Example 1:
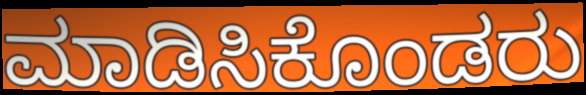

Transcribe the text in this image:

ಮಾಡಿಸಿಕೊಂಡರು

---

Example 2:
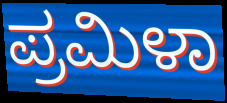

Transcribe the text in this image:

ಪ್ರಮಿಳಾ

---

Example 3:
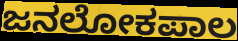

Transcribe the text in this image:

ಜನಲೋಕಪಾಲ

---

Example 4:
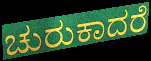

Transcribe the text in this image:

ಚುರುಕಾದರೆ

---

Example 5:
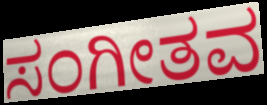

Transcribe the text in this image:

ಸಂಗೀತವ